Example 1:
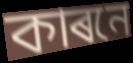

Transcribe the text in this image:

কাৰনে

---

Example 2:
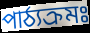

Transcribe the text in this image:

পাঠ্যক্ৰমঃ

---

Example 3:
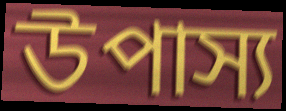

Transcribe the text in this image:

উপাস্য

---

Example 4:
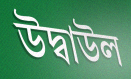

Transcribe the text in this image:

উদ্বাউল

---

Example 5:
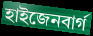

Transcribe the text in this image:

হাইজেনবাৰ্গ